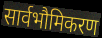
सार्वभौमिकरण